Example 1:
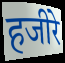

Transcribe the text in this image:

हजीरे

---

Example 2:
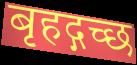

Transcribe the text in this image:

बृहद्गच्छ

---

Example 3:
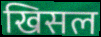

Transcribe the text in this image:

खिसल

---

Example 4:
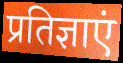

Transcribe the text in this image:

प्रतिज्ञाएं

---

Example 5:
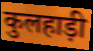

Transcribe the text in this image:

कुलहाड़ी